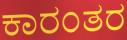
ಕಾರಂತರ